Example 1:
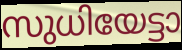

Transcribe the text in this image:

സുധിയേട്ടാ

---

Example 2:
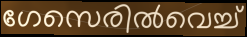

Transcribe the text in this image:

ഗേസെരിൽവെച്ച്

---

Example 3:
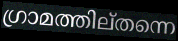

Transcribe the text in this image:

ഗ്രാമത്തില്തന്നെ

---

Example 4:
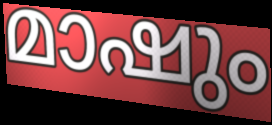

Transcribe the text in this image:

മാഷും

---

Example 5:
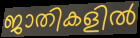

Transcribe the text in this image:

ജാതികളിൽ